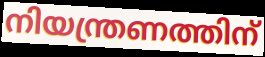
നിയന്ത്രണത്തിന്